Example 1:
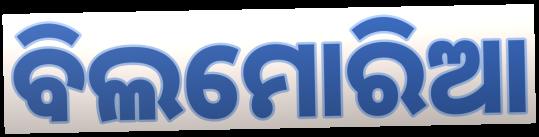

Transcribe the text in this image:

ବିଲମୋରିଆ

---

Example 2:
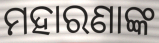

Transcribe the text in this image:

ମହାରଣାଙ୍କ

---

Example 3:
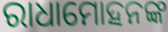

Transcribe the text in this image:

ରାଧାମୋହନଙ୍କ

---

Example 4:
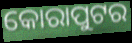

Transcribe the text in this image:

କୋରାପୁଟର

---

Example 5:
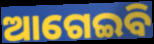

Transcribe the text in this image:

ଆଗେଇବି